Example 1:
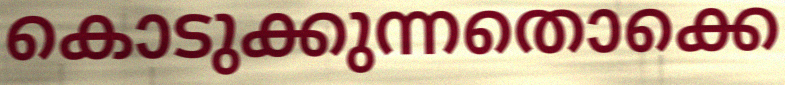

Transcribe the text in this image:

കൊടുക്കുന്നതൊക്കെ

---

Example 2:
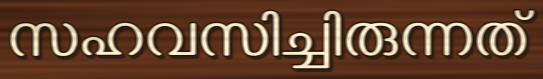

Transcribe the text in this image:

സഹവസിച്ചിരുന്നത്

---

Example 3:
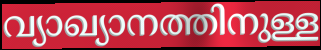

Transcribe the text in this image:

വ്യാഖ്യാനത്തിനുള്ള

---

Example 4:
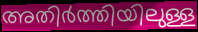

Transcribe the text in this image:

അതിർത്തിയിലുള്ള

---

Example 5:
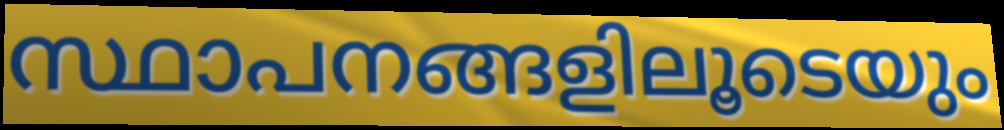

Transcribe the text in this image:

സ്ഥാപനങ്ങളിലൂടെയും